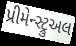
પ્રીમેન્સ્ટ્રુઅલ